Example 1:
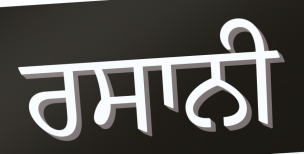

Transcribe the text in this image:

ਰਸਾਨੀ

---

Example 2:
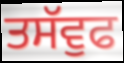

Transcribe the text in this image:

ਤਸੱਵੁਫ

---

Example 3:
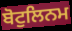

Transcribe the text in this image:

ਬੋਟੁਲਿਨਮ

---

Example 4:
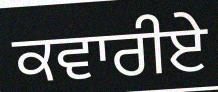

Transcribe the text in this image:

ਕਵਾਰੀਏ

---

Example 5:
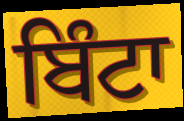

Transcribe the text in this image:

ਬਿੰਟਾ